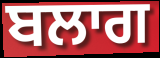
ਬਲਾਗ